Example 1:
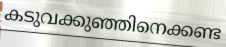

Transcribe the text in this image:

കടുവക്കുഞ്ഞിനെക്കണ്ട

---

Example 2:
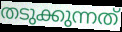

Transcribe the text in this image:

തടുക്കുന്നത്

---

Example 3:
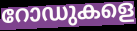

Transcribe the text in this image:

റോഡുകളെ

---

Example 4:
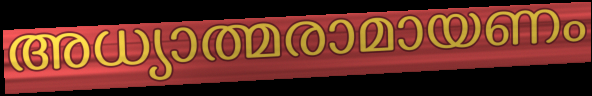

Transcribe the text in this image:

അധ്യാത്മരാമായണം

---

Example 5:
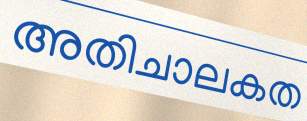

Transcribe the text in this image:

അതിചാലകത